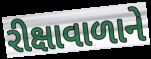
રીક્ષાવાળાને